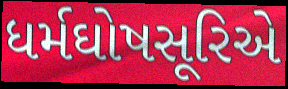
ધર્મઘોષસૂરિએ